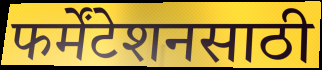
फर्मेंटेशनसाठी